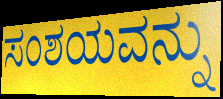
ಸಂಶಯವನ್ನು